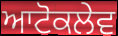
ਆਟੋਕਲੇਵ